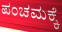
ಪಂಚಮಕ್ಕೆ